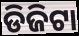
ଡିଜିଟା